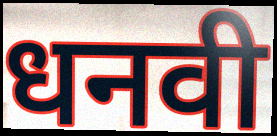
धनवी